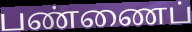
பண்ணைப்